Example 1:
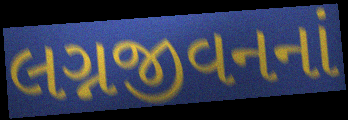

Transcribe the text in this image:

લગ્નજીવનનાં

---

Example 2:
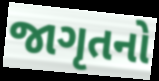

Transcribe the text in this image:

જાગૃતનો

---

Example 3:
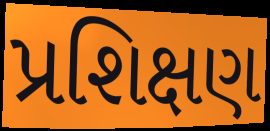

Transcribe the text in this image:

પ્રશિક્ષણ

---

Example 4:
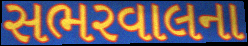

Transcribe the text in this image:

સભરવાલના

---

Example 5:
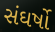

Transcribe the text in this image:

સંઘર્ષો